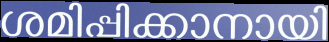
ശമിപ്പിക്കാനായി